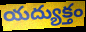
యద్యుక్తం